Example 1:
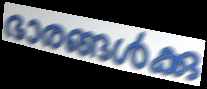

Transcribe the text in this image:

ഭാരങ്ങൾക്കു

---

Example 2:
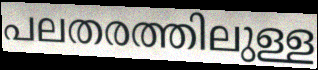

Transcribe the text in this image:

പലതരത്തിലുള്ള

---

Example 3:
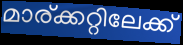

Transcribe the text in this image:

മാര്ക്കറ്റിലേക്ക്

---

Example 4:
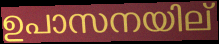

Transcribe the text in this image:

ഉപാസനയില്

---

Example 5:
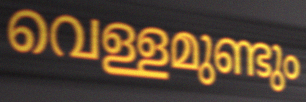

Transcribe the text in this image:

വെള്ളമുണ്ടും